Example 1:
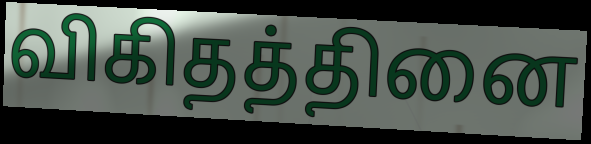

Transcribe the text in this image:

விகிதத்தினை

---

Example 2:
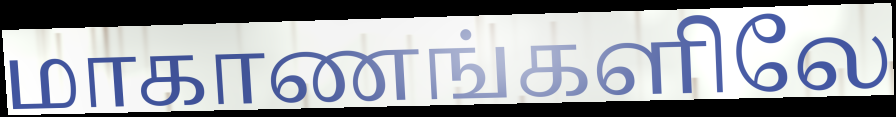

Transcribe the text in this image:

மாகாணங்களிலே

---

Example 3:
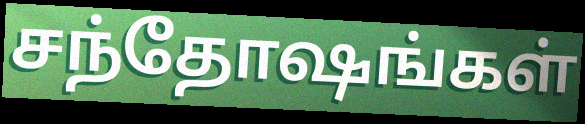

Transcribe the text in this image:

சந்தோஷங்கள்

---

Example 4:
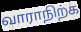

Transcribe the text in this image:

வாராநிற்க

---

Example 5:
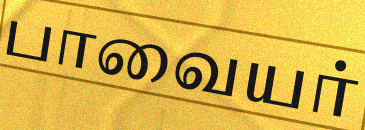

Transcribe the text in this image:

பாவையர்